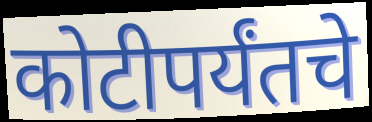
कोटीपर्यंतचे